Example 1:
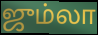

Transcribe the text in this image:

ஜும்லா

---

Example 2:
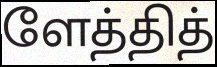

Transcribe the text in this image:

ளேத்தித்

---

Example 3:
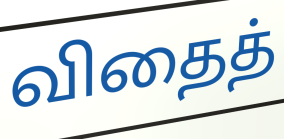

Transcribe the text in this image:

விதைத்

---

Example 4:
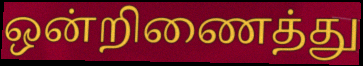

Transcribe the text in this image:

ஒன்றிணைத்து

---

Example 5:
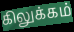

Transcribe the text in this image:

கிலுக்கம்